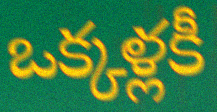
ఒక్కళ్లకీ